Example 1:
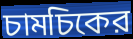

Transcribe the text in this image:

চামচিকের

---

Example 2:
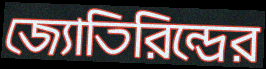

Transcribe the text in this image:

জ্যোতিরিন্দ্রের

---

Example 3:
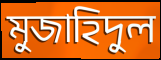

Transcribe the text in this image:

মুজাহিদুল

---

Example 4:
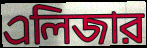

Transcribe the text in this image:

এলিজার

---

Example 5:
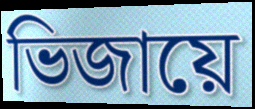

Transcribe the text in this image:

ভিজায়ে